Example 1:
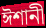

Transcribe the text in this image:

ঈশানী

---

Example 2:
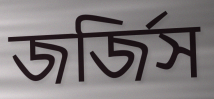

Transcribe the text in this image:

জর্জিস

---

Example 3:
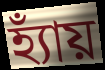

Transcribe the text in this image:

হ্যাঁয়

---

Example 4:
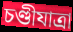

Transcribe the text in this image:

চণ্ডীযাত্রা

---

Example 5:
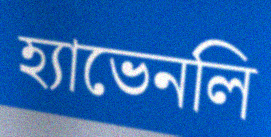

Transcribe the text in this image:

হ্যাভেনলি